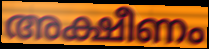
അക്ഷീണം